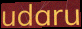
udaru